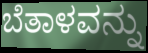
ಬೆತಾಳವನ್ನು